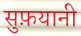
सुफ़यानी